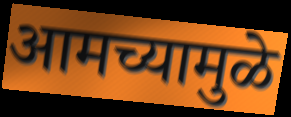
आमच्यामुळे